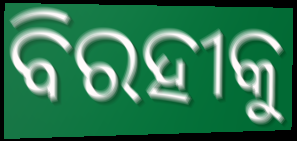
ବିରହୀକୁ